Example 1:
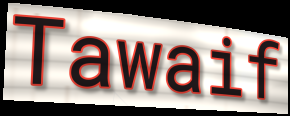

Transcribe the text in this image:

Tawaif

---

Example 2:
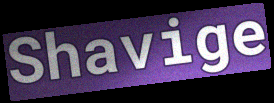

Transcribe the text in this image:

Shavige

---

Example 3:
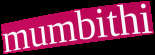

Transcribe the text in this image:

mumbithi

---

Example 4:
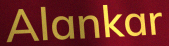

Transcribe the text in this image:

Alankar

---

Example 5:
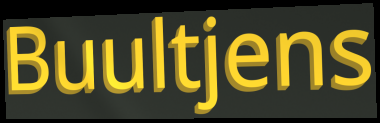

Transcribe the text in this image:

Buultjens